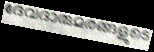
ദേവദാരുമരങ്ങളുടെ